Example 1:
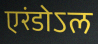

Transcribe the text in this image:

एरंडोऽल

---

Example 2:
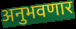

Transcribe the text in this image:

अनुभवणार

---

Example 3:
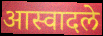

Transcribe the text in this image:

आस्वादले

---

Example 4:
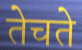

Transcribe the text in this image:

तेचते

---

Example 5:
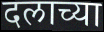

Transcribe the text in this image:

दलाच्या